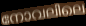
നോവലിലെ